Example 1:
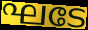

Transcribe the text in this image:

ഘടേ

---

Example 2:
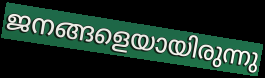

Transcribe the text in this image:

ജനങ്ങളെയായിരുന്നു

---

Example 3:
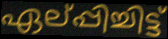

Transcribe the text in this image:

ഏല്പ്പിച്ചിട്ട്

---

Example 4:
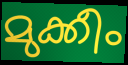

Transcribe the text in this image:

മുക്കീം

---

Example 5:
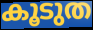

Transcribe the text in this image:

കൂടുത